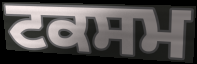
ਟਕਸਮ